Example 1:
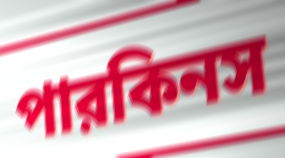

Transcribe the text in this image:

পারকিনস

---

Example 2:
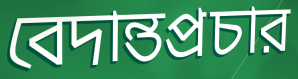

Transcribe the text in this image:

বেদান্তপ্রচার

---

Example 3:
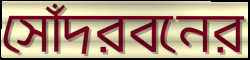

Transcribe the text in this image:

সোঁদরবনের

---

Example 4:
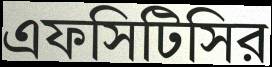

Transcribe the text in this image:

এফসিটিসির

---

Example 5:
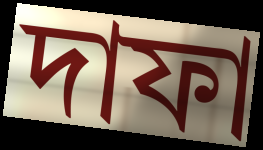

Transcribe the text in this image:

দাফা